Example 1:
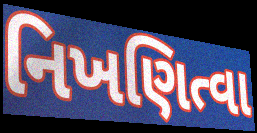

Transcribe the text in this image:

નિખણિત્વા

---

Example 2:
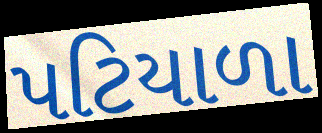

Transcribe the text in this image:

પટિયાળા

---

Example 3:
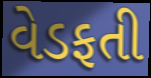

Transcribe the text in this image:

વેડફતી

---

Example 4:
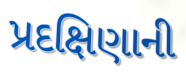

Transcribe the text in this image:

પ્રદક્ષિણાની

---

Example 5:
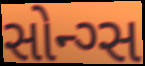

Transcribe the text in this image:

સોન્ગ્સ